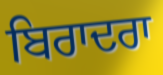
ਬਿਰਾਦਰਾ